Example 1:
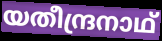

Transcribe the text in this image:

യതീന്ദ്രനാഥ്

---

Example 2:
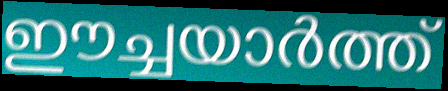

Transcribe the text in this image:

ഈച്ചയാർത്ത്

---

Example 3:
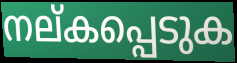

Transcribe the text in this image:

നല്കപ്പെടുക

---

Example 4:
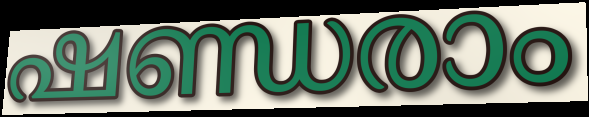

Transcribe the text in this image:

ഷണ്ഡരാം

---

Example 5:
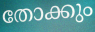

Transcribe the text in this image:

തോക്കും